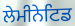
ਲੇਮੀਨੇਟਿਡ